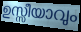
ഉസ്സീയാവും